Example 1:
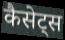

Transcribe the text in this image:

कैसेट्स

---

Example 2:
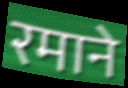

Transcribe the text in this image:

रमाने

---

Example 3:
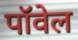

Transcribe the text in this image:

पॉवेल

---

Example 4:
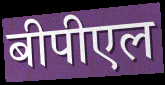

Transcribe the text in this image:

बीपीएल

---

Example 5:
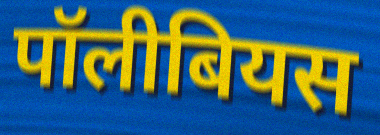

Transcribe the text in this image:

पॉलीबियस